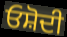
ਓਸ਼ੋਦੀ